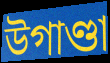
উগাণ্ডা